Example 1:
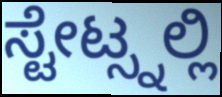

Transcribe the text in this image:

ಸ್ಟೇಟ್ಸ್ನಲ್ಲಿ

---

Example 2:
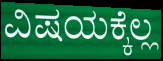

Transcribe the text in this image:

ವಿಷಯಕ್ಕೆಲ್ಲ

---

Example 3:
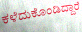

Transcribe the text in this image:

ಕಳೆದುಕೊಂಡಿದ್ದಾರೆ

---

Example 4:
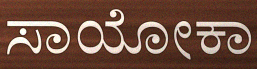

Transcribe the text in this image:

ಸಾಯೋಕಾ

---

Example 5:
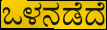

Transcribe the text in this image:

ಒಳನಡೆದೆ